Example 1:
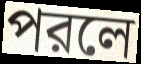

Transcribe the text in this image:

পরলে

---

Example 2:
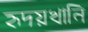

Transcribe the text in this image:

হৃদয়খানি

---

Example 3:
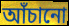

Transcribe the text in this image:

আঁচানো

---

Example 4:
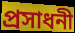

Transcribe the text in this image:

প্রসাধনী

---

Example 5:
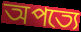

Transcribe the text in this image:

অপত্যে